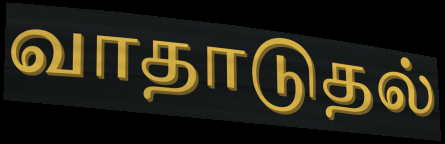
வாதாடுதல்